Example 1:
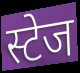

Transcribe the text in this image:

स्टेज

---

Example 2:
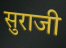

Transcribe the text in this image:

सुराजी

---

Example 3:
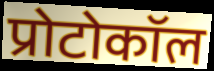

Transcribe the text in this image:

प्रोटोकॉल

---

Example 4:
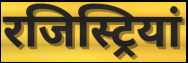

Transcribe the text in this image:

रजिस्ट्रियां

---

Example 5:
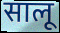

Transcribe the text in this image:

सालू